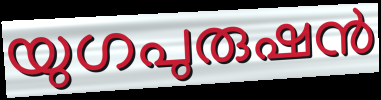
യുഗപുരുഷൻ